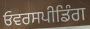
ਓਵਰਸਪੀਡਿੰਗ